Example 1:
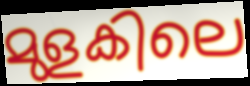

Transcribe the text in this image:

മുളകിലെ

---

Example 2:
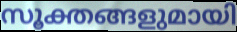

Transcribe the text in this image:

സൂക്തങ്ങളുമായി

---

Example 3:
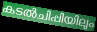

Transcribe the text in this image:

കടൽചിപ്പിയിലും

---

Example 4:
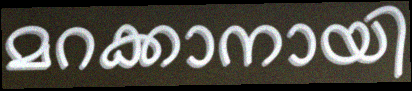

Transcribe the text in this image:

മറക്കാനായി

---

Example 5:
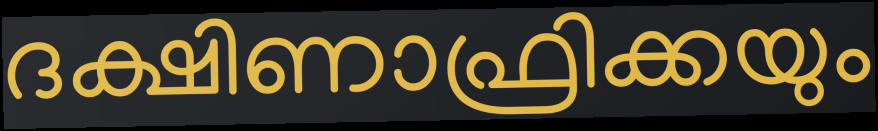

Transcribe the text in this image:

ദക്ഷിണാഫ്രിക്കയും